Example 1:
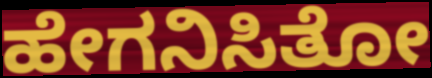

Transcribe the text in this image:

ಹೇಗನಿಸಿತೋ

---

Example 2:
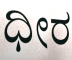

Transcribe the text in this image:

ಧೀರ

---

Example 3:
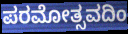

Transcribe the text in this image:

ಪರಮೋತ್ಸವದಿಂ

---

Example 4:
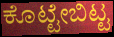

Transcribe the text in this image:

ಕೊಟ್ಟೇಬಿಟ್ಟ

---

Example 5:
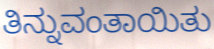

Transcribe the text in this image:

ತಿನ್ನುವಂತಾಯಿತು